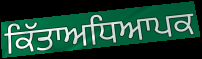
ਕਿੱਤਾਅਧਿਆਪਕ